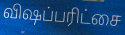
விஷப்பரிட்சை